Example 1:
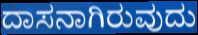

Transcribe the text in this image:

ದಾಸನಾಗಿರುವುದು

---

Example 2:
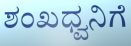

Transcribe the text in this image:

ಶಂಖಧ್ವನಿಗೆ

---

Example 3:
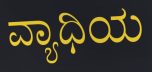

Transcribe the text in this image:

ವ್ಯಾಧಿಯ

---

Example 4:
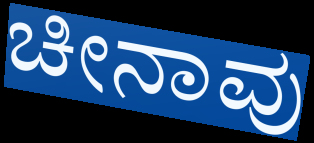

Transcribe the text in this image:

ಚೀನಾವು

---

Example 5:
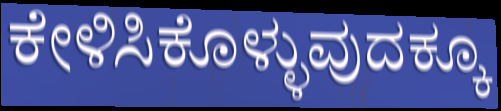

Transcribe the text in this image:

ಕೇಳಿಸಿಕೊಳ್ಳುವುದಕ್ಕೂ